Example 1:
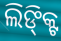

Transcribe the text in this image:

ଲିଙ୍କ୍ଟି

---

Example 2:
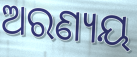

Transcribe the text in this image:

ଅରଣ୍ୟୟ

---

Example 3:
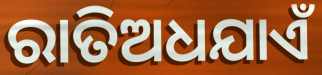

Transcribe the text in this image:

ରାତିଅଧଯାଏଁ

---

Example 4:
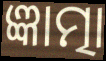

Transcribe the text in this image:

ଜ୍ଞାତ୍ମା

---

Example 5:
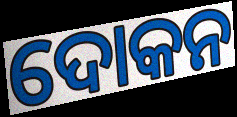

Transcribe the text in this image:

ଦୋକନ